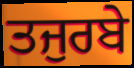
ਤਜੁਰਬੇ